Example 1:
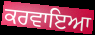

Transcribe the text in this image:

ਕਰਵਾਇਆ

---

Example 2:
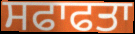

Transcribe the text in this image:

ਸਫਾਫਤਾ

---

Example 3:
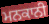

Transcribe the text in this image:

ਮਨਕਾਨੀ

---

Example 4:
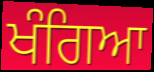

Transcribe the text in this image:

ਖੰਗਿਆ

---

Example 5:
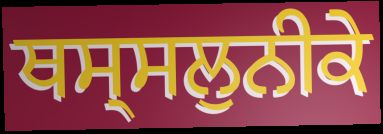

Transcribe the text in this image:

ਥਸ੍ਸਲੁਨੀਕੇ